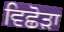
ਵਿਛੋੜਾ